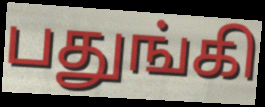
பதுங்கி